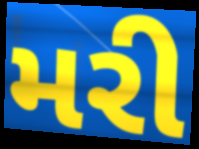
મરી